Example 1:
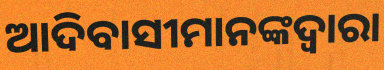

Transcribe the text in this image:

ଆଦିବାସୀମାନଙ୍କଦ୍ୱାରା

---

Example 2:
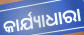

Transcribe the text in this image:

କାର୍ଯ୍ୟାଧାରା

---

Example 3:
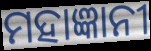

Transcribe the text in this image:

ମହାଜ୍ଞାନୀ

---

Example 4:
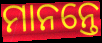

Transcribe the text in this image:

ମାନନ୍ତେ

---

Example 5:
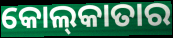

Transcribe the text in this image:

କୋଲ୍‍କାତାର